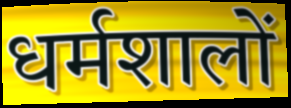
धर्मशालों